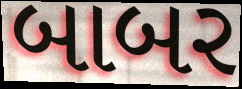
બાબર